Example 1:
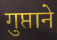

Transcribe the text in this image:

गुप्ताने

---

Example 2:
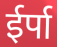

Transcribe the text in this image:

ईर्पा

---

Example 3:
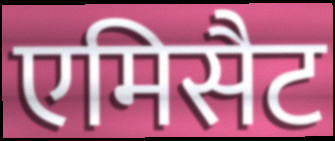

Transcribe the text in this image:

एमिसैट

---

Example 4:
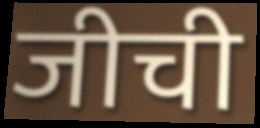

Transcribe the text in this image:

जीची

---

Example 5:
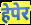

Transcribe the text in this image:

हेपेर